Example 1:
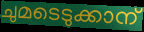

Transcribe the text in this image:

ചുമടെടുക്കാന്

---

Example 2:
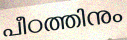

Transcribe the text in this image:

പീഠത്തിനും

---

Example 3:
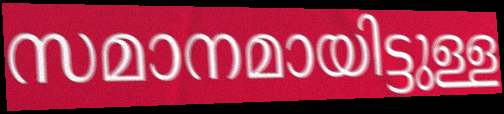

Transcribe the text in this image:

സമാനമായിട്ടുള്ള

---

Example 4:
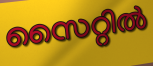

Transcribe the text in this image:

സൈറ്റിൽ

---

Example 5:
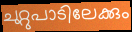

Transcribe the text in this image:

ചുറ്റുപാടിലേക്കും